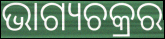
ଭାଗ୍ୟଚକ୍ରର